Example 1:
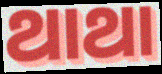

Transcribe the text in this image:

ଥାଥା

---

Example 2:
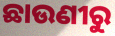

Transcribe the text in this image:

ଛାଉଣୀରୁ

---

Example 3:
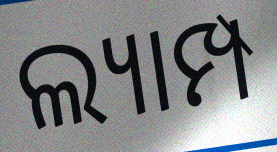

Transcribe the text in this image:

ଲ୍ୟାମ୍ପ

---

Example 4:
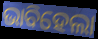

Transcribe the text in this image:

ଭାବିହେଲା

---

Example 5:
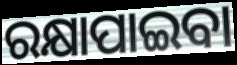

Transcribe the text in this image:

ରକ୍ଷାପାଇବା